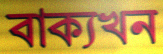
বাক্যখন